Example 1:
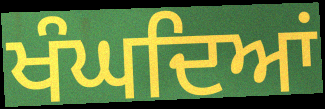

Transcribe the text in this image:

ਖੰਘਦਿਆਂ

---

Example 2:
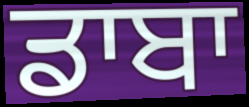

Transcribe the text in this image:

ਡਾਬਾ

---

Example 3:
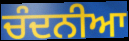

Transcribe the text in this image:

ਚੰਦਨੀਆ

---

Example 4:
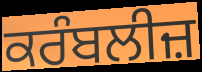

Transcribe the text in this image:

ਕਰੰਬਲੀਜ਼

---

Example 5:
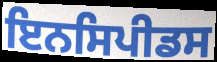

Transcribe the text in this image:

ਇਨਸਿਪੀਡਸ